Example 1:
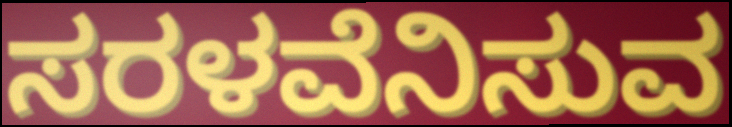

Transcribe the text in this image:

ಸರಳವೆನಿಸುವ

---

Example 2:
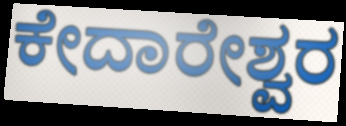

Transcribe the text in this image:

ಕೇದಾರೇಶ್ವರ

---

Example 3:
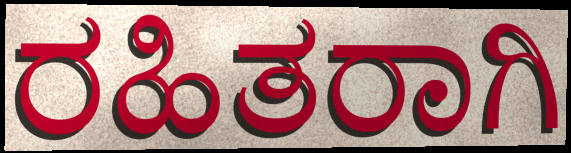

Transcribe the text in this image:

ರಹಿತರಾಗಿ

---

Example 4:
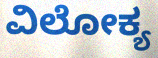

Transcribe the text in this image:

ವಿಲೋಕ್ಯ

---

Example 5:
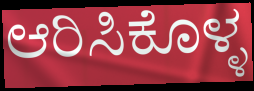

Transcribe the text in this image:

ಆರಿಸಿಕೊಳ್ಳ